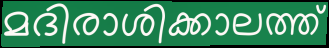
മദിരാശിക്കാലത്ത്